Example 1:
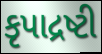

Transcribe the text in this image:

કૃપાદ્રષ્ટી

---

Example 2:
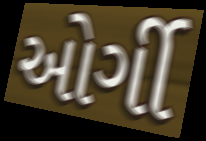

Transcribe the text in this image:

ઓર્ગી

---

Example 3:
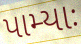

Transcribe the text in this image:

પામ્યાઃ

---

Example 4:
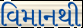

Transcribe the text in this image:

વિમાનથી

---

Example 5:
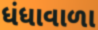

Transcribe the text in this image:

ધંધાવાળા